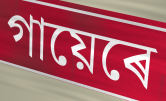
গায়েৰে